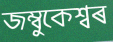
জম্বুকেশ্বৰ